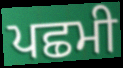
ਪਛਮੀ